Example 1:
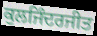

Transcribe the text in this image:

ਕੁਲਜਿੰਦਰਜੀਤ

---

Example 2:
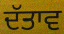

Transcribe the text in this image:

ਦੱਤਾਵ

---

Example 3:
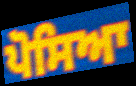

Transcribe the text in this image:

ਪੋਸਿਆ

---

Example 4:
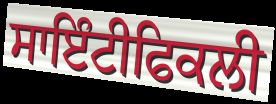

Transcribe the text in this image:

ਸਾਇੰਟੀਫਿਕਲੀ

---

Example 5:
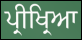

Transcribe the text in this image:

ਪ੍ਰੀਖ੍ਰਿਆ